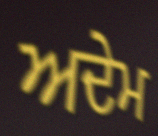
ਅਦੇਮ